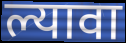
ल्यावा